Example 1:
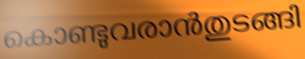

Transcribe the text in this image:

കൊണ്ടുവരാൻതുടങ്ങി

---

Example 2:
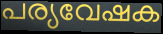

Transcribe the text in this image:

പര്യവേഷക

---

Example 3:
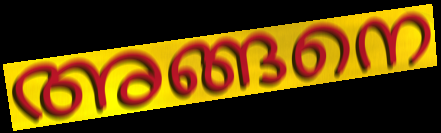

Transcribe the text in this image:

അങ്ങനെ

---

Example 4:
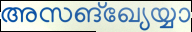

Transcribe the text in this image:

അസങ്ഖ്യേയ്യാ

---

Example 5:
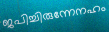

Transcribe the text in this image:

ജപിച്ചിരുന്നേനഹം